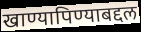
खाण्यापिण्याबद्दल